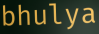
bhulya